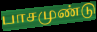
பாசமுண்டு